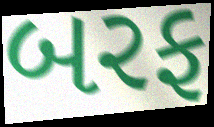
બરફ